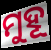
ମୁହୂ